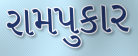
રામપુકાર